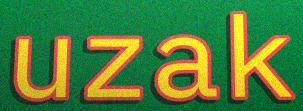
uzak